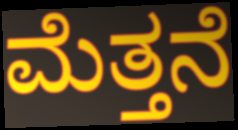
ಮೆತ್ತನೆ